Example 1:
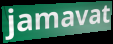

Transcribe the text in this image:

jamavat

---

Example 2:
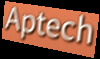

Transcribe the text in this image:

Aptech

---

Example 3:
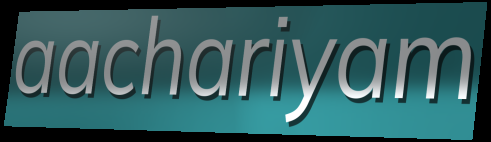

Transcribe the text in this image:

aachariyam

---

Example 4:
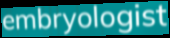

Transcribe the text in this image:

embryologist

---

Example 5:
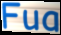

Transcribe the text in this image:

Fua